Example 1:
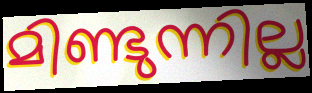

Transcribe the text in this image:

മിണ്ടുന്നില്ല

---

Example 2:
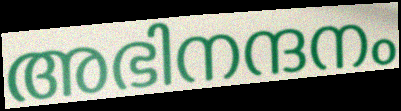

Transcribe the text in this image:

അഭിനന്ദനം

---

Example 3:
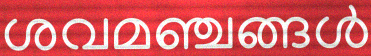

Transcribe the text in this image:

ശവമഞ്ചങ്ങൾ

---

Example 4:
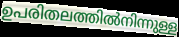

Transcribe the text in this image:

ഉപരിതലത്തിൽനിന്നുള്ള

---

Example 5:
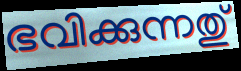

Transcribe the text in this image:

ഭവിക്കുന്നതു്